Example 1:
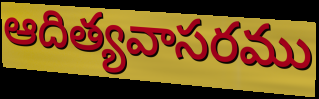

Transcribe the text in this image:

ఆదిత్యవాసరము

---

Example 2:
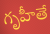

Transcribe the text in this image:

గృహీతే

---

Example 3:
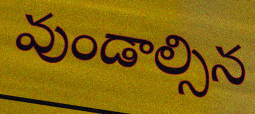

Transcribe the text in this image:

వుండాల్సిన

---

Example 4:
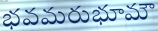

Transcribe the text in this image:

భవమరుభూమౌ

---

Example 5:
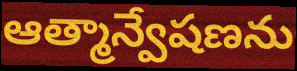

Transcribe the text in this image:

ఆత్మాన్వేషణను